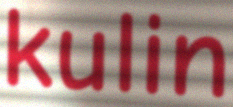
kulin